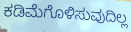
ಕಡಿಮೆಗೊಳಿಸುವುದಿಲ್ಲ